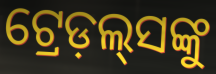
ଟ୍ରେଡ଼ଲ୍‍ସଙ୍କୁ